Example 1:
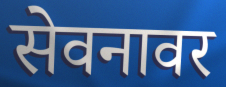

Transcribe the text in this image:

सेवनावर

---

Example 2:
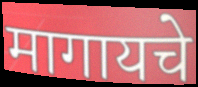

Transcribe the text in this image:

मागायचे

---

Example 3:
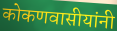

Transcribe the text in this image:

कोकणवासीयांनी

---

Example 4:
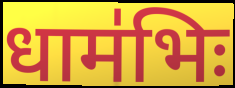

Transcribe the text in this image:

धाम॑भिः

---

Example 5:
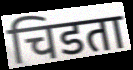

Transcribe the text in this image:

चिडता